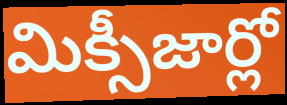
మిక్సీజార్లో